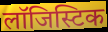
लॉजिस्टिक